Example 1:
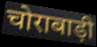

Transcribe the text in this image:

चोराबाड़ी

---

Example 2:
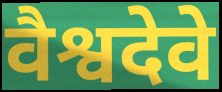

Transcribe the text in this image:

वैश्वदेवे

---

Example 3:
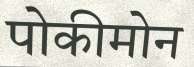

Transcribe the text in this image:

पोकीमोन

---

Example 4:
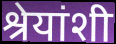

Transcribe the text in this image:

श्रेयांशी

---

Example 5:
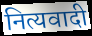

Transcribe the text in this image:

नित्यवादी